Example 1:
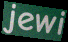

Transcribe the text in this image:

jewi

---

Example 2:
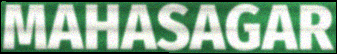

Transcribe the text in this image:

MAHASAGAR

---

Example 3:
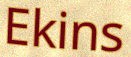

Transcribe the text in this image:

Ekins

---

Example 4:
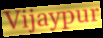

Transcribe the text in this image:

Vijaypur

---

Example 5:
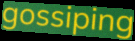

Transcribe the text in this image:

gossiping